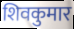
शिवकुमार